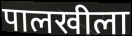
पालखीला